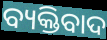
ବ୍ୟକ୍ତିବାଦ